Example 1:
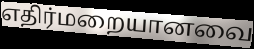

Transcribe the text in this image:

எதிர்மறையானவை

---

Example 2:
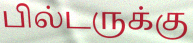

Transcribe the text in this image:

பில்டருக்கு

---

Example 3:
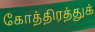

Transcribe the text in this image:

கோத்திரத்துக்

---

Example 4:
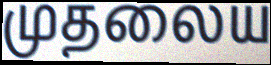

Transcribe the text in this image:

முதலைய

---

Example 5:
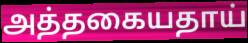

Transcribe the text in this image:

அத்தகையதாய்